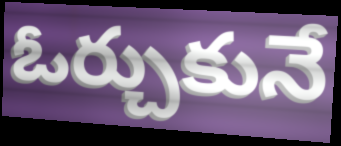
ఓర్చుకునే